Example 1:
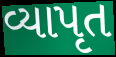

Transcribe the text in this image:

વ્યાપૃત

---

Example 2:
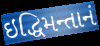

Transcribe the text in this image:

ઇદ્ધિમન્તાનં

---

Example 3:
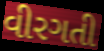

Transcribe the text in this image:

વીરગતી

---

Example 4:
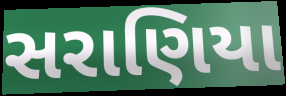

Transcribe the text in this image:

સરાણિયા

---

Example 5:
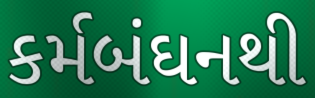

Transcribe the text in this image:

કર્મબંઘનથી